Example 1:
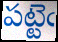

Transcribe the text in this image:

పట్టెఁ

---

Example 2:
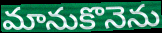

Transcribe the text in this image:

మానుకొనెను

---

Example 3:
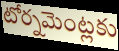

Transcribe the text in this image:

టోర్నమెంట్లకు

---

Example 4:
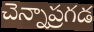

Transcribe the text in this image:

చెన్నాప్రగడ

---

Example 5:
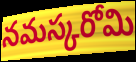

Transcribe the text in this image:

నమస్కరోమి